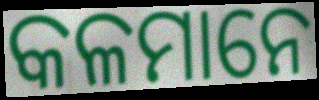
କଳମାନେ